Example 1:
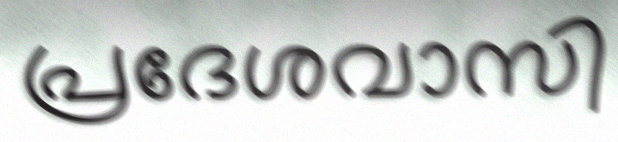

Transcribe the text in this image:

പ്രദേശവാസി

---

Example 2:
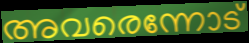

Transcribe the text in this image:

അവരെന്നോട്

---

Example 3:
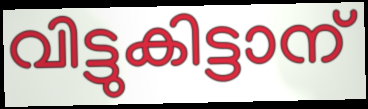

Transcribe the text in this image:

വിട്ടുകിട്ടാന്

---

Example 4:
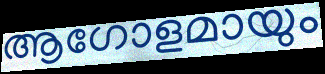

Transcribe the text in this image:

ആഗോളമായും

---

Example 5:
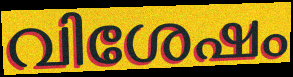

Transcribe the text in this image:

വിശേഷം